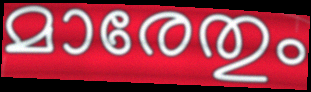
മാരേതും